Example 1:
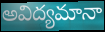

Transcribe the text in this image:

అవిద్యమానా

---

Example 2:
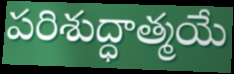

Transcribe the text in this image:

పరిశుద్ధాత్మయే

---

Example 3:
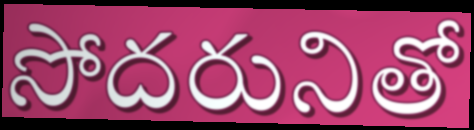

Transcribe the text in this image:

సోదరునితో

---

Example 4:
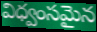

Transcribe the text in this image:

విధ్వంసమైన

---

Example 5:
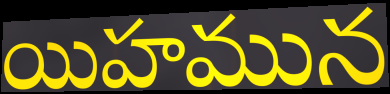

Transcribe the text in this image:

యిహమున